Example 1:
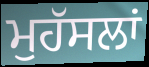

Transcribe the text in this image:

ਮੁਹੱਸਲਾਂ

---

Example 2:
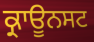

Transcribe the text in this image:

ਕ੍ਰਾਊਨਸਟ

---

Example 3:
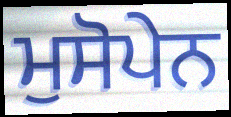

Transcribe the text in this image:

ਮੁਸੋਪੇਨ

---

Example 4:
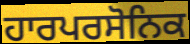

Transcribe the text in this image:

ਹਾਰਪਰਸੋਨਿਕ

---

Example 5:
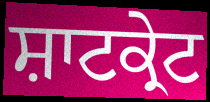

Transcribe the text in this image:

ਸ਼ਾਟਕ੍ਰੇਟ